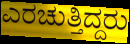
ಎರಚುತ್ತಿದ್ದರು